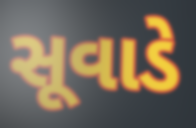
સૂવાડે